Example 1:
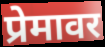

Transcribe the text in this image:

प्रेमावर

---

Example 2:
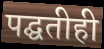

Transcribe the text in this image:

पद्घतीही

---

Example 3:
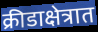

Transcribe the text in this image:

क्रीडाक्षेत्रात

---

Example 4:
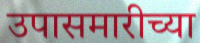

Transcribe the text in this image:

उपासमारीच्या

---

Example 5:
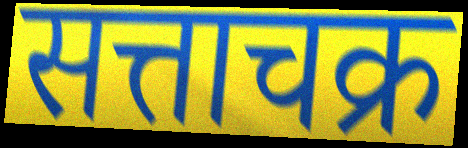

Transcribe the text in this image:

सत्ताचक्र